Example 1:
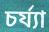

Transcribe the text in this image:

চর্য্যা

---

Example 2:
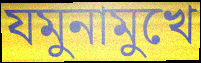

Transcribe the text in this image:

যমুনামুখে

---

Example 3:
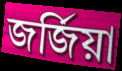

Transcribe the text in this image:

জর্জিয়া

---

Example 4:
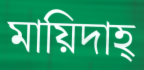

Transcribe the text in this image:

মায়িদাহ্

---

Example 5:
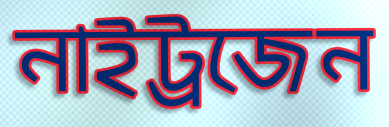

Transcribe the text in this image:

নাইট্রজেন